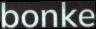
bonke